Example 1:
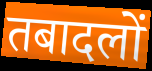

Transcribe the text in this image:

तबादलों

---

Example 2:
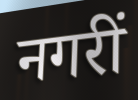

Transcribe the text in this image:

नगरीं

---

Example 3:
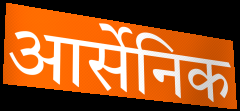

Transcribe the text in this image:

आर्सेनिक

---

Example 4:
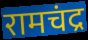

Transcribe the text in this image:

रामचंद्र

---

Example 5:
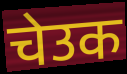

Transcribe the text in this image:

चेउक